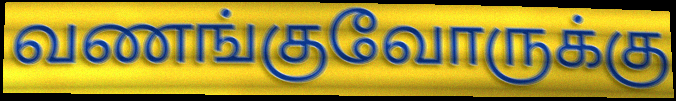
வணங்குவோருக்கு